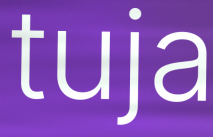
tuja